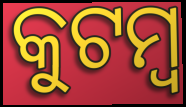
କୁଟମ୍ୱ